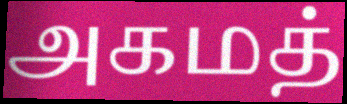
அகமத்